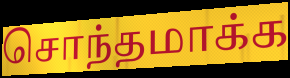
சொந்தமாக்க